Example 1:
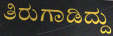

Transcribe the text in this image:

ತಿರುಗಾಡಿದ್ದು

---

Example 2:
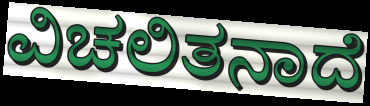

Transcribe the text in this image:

ವಿಚಲಿತನಾದೆ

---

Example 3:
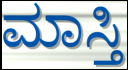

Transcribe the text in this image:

ಮಾಸ್ತಿ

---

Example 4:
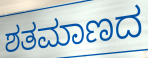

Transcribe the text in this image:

ಶತಮಾಣದ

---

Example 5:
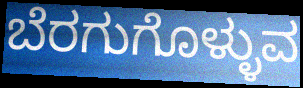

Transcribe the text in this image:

ಬೆರಗುಗೊಳ್ಳುವ